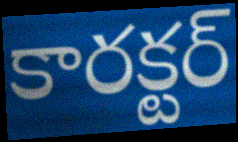
కారక్టర్